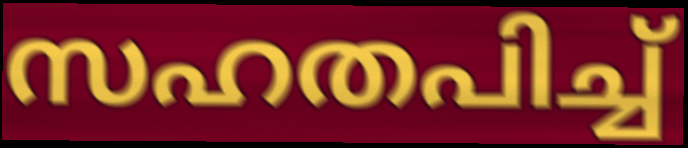
സഹതപിച്ച്